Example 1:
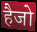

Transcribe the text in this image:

हैजो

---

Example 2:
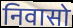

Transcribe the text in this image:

निवासो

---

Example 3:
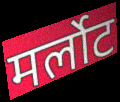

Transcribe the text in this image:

मर्लोट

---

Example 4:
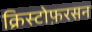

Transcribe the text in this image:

क्रिस्टोफ़रसन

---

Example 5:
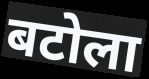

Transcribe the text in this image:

बटोला